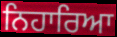
ਨਿਹਾਰਿਆ